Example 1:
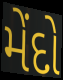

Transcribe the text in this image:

મેંદો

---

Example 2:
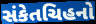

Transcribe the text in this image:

સંકેતચિહનો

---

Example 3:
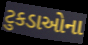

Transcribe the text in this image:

ટુકડાઓના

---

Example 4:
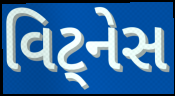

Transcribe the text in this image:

વિટ્નેસ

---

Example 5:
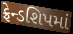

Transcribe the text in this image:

ફ્રેન્ડશિપમાં